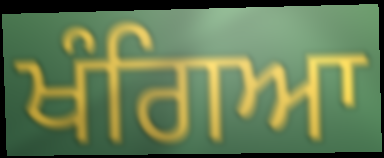
ਖੰਗਿਆ